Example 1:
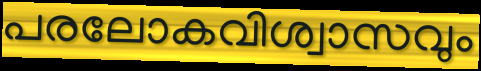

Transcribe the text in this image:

പരലോകവിശ്വാസവും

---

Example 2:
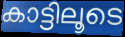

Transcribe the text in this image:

കാട്ടിലൂടെ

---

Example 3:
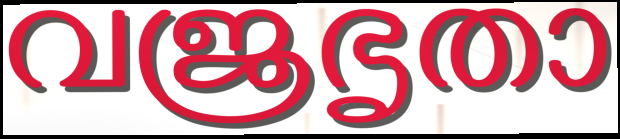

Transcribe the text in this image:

വജ്രഭൃതാ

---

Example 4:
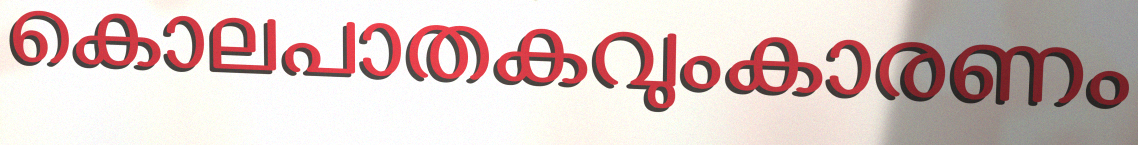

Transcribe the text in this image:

കൊലപാതകവുംകാരണം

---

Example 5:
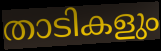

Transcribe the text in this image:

താടികളും